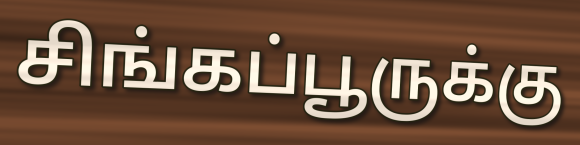
சிங்கப்பூருக்கு